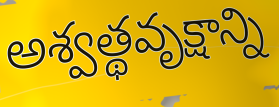
అశ్వత్థవృక్షాన్ని